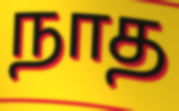
நாத